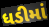
ધડીમાં